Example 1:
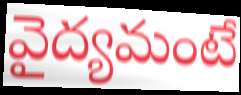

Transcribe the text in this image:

వైద్యమంటే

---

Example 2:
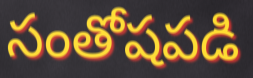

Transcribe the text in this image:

సంతోషపడి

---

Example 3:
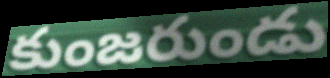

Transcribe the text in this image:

కుంజరుండు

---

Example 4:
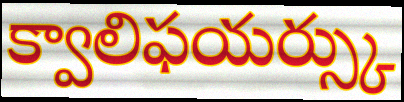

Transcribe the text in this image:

క్వాలిఫయర్స్కు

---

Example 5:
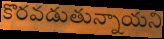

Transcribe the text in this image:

కొరవడుతున్నాయని